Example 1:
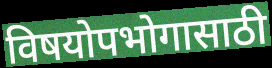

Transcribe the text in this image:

विषयोपभोगासाठी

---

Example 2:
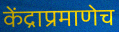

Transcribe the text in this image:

केंद्राप्रमाणेच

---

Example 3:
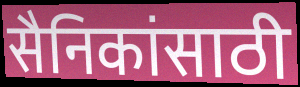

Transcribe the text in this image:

सैनिकांसाठी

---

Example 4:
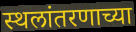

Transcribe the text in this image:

स्थलांतरणाच्या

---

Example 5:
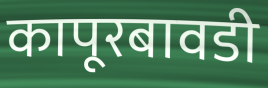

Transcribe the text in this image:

कापूरबावडी